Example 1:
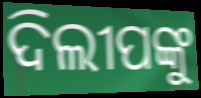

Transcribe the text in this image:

ଦିଲୀପଙ୍କୁ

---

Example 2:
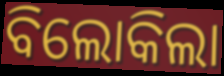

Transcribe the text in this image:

ବିଲୋକିଲା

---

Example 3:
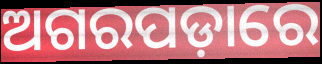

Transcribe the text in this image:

ଅଗରପଡ଼ାରେ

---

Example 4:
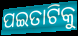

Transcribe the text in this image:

ପଇତାଟିକୁ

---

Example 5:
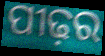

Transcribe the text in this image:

ପୀଢ଼ର